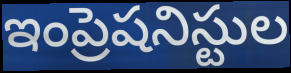
ఇంప్రెషనిస్టుల